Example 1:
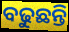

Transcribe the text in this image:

ବଢୁଛନ୍ତି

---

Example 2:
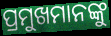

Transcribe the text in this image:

ପ୍ରମୁଖମାନଙ୍କୁ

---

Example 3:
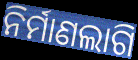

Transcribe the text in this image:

ନିର୍ମାଣଲାଗି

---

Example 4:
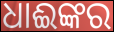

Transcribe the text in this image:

ଧାଈଙ୍କର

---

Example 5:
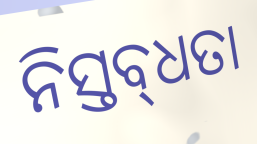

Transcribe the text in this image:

ନିସ୍ତବ୍‌ଧତା